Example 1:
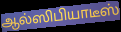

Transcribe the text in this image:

ஆல்ஸிபியாடீஸ்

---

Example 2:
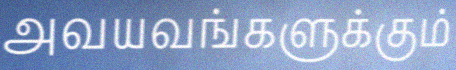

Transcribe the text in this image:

அவயவங்களுக்கும்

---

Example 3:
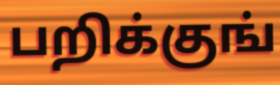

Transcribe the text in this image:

பறிக்குங்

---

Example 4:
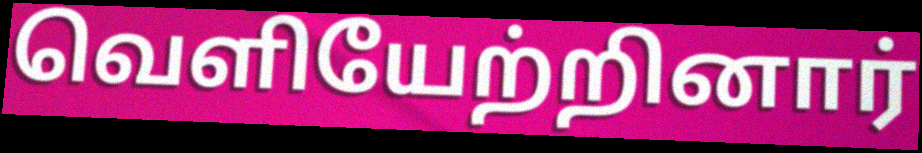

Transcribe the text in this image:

வெளியேற்றினார்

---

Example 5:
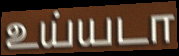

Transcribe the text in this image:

உய்யடா